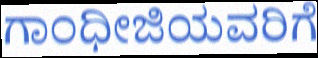
ಗಾಂಧೀಜಿಯವರಿಗೆ